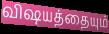
விஷயத்தையும்